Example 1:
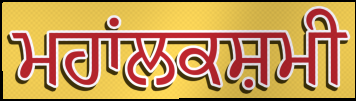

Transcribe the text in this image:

ਮਹਾਂਲਕਸ਼ਮੀ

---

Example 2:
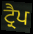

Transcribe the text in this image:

ਟ੍ਰੈਪ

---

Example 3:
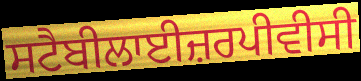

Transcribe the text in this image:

ਸਟੈਬੀਲਾਈਜ਼ਰਪੀਵੀਸੀ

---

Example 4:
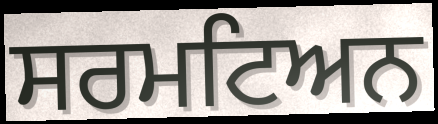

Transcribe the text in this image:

ਸਰਮਟਿਅਨ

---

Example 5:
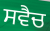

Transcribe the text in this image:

ਸਵੈਚ